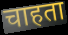
चाहता